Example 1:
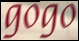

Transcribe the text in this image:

gogo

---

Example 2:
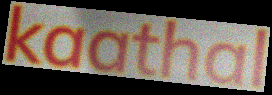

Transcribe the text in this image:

kaathal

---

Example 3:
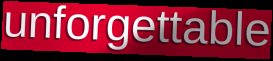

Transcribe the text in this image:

unforgettable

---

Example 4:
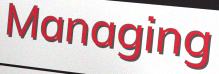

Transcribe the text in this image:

Managing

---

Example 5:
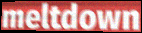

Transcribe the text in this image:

meltdown